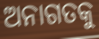
ଅନାଗତକୁ